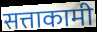
सत्ताकामी